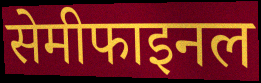
सेमीफाइनल